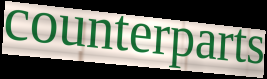
counterparts